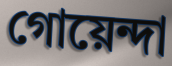
গোয়েন্দা